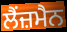
ਲੈਂਜ਼ਮੈਨ